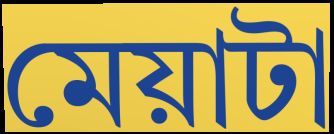
মেয়াটা